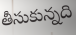
తీసుకున్నది